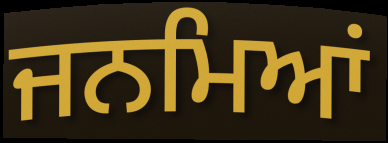
ਜਨਮਿਆਂ